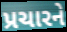
પ્રચારને